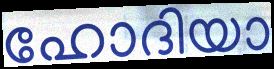
ഹോദിയാ